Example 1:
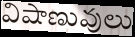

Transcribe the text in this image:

విషాణువులు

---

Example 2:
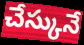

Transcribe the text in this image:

చేస్కునే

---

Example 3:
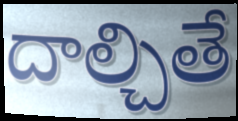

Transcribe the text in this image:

దాల్చితే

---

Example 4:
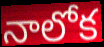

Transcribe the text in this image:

నాలోక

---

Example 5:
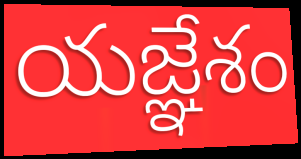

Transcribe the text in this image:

యజ్ఞేశం